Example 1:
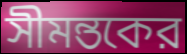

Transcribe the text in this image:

সীমন্তকের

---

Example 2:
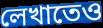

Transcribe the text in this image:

লেখাতেও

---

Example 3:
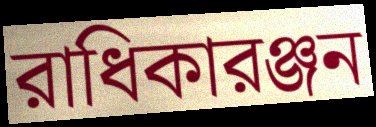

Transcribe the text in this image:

রাধিকারঞ্জন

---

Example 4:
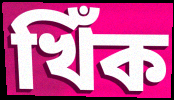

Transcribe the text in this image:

খিঁক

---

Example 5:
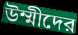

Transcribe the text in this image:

উম্মীদের